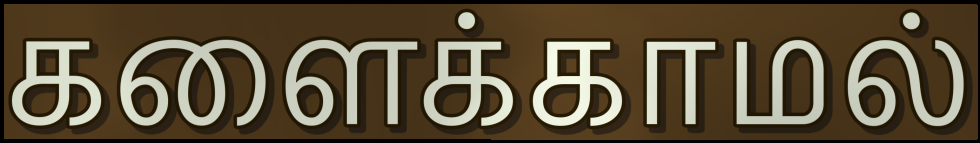
களைக்காமல்